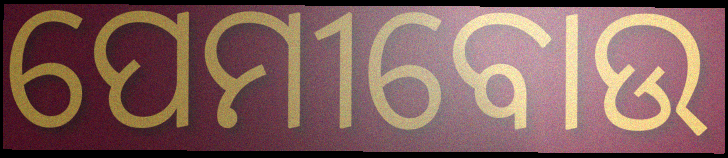
ପେମୀବୋଉ